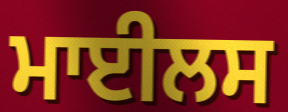
ਮਾਈਲਸ